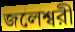
জলেশ্বরী